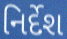
નિર્દેશ